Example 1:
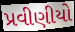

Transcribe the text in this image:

પ્રવીણીયો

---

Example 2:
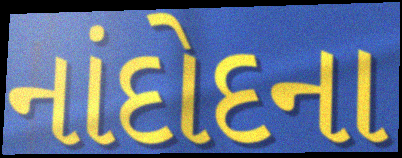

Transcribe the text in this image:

નાંદોદના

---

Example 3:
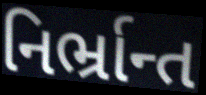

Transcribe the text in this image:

નિર્ભ્રાન્ત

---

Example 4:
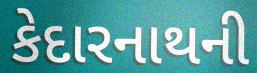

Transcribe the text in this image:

કેદારનાથની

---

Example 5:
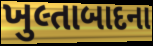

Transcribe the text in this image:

ખુલ્તાબાદના